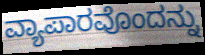
ವ್ಯಾಪಾರವೊಂದನ್ನು